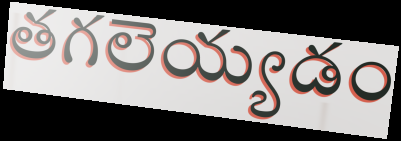
తగలెయ్యడం